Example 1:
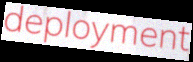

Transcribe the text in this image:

deployment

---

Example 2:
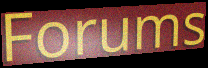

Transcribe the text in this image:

Forums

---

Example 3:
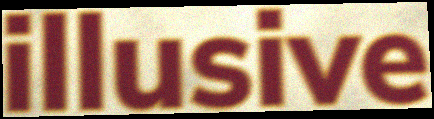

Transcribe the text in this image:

illusive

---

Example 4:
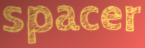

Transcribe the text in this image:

spacer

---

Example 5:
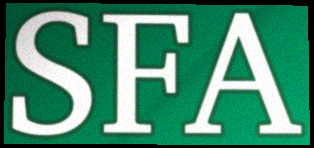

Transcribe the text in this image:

SFA